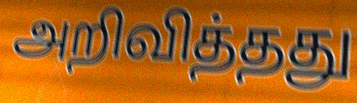
அறிவித்தது